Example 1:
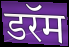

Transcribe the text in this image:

डरॅम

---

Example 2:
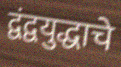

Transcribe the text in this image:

द्वंद्वयुद्धाचे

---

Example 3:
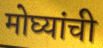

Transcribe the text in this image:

मोघ्यांची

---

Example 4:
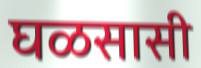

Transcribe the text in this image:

घळसासी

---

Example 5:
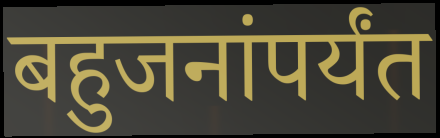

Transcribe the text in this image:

बहुजनांपर्यंत